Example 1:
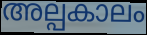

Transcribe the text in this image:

അല്പകാലം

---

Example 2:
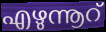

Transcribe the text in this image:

എഴുന്നൂറ്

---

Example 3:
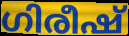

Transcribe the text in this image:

ഗിരീഷ്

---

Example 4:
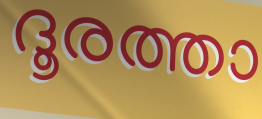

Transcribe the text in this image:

ദൂരത്താ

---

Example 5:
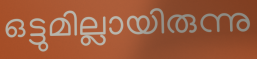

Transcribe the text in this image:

ഒട്ടുമില്ലായിരുന്നു